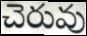
చెరువు